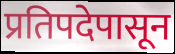
प्रतिपदेपासून